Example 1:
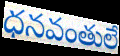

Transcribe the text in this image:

ధనవంతులే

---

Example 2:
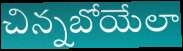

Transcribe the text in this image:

చిన్నబోయేలా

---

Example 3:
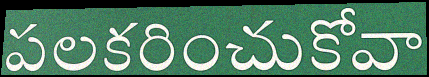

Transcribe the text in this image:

పలకరించుకోవా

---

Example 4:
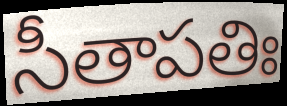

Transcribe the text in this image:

సీతాపతిః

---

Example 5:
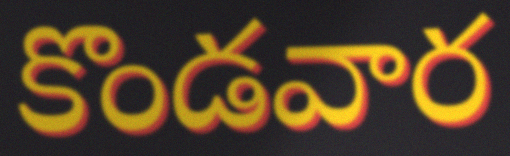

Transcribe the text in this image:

కొండవార